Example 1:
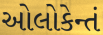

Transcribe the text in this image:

ઓલોકેન્તં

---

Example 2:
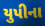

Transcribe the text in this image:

યુપીના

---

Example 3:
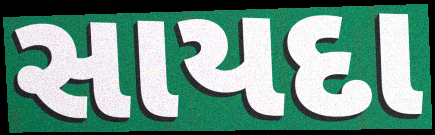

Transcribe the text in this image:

સાયદા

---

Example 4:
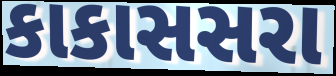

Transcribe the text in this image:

કાકાસસરા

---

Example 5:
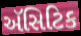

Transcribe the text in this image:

ઍસિટિક